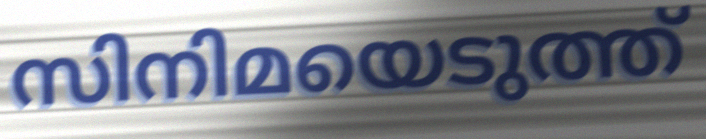
സിനിമയെടുത്ത്